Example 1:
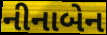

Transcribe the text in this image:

નીનાબેન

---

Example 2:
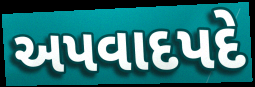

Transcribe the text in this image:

અપવાદપદે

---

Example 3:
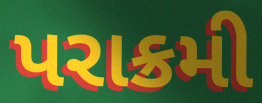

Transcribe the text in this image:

પરાક્રમી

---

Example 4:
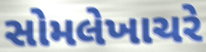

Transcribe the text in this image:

સોમલેખાચરે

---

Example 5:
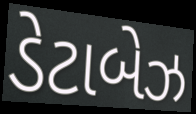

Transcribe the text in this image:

ડેટાબેઝ